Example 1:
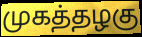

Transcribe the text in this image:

முகத்தழகு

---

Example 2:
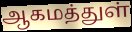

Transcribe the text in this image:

ஆகமத்துள்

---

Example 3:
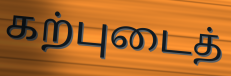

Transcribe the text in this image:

கற்புடைத்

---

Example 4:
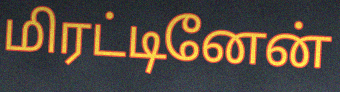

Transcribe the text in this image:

மிரட்டினேன்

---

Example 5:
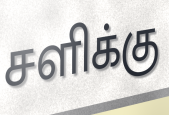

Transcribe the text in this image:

சளிக்கு